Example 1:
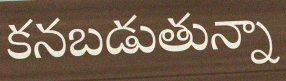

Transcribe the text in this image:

కనబడుతున్నా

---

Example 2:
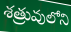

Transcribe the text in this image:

శత్రువులోని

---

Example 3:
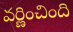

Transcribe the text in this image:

వర్ణించింది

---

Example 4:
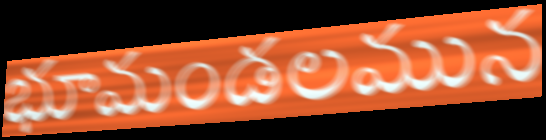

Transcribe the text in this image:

భూమండలమున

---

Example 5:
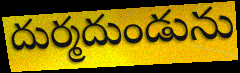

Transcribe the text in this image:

దుర్మదుండును